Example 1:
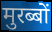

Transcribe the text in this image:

मुरब्बों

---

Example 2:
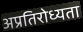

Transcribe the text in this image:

अप्रतिरोध्यता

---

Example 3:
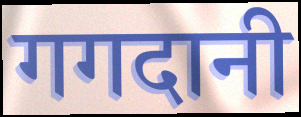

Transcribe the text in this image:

गगदानी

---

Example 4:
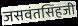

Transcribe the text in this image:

जसवंतसिंहजी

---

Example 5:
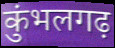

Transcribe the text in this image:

कुंभलगढ़